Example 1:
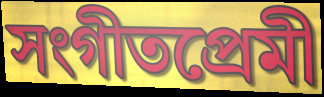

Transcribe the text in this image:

সংগীতপ্রেমী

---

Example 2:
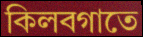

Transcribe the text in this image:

কিলবগাতে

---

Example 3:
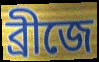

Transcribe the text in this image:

ব্রীজে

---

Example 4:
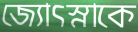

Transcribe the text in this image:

জ্যোৎস্নাকে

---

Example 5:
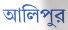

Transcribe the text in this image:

আলিপুর